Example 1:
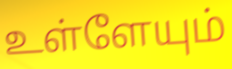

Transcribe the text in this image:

உள்ளேயும்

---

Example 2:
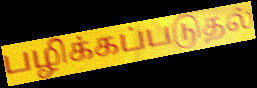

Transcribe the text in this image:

பழிக்கப்படுதல்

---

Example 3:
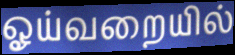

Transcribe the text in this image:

ஓய்வறையில்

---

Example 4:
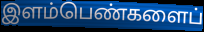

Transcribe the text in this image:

இளம்பெண்களைப்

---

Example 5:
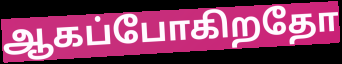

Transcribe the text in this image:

ஆகப்போகிறதோ